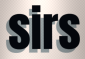
sirs